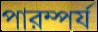
পারম্পর্য